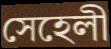
সেহেলী